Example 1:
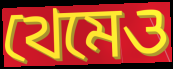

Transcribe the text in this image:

থেমেও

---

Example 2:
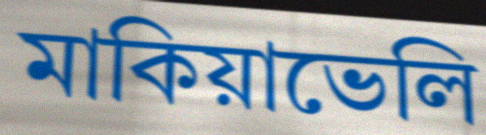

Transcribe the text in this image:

মাকিয়াভেলি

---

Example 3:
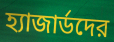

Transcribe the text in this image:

হ্যাজার্ডদের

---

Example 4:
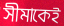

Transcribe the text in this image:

সীমাকেই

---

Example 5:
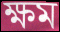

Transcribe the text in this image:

ক্ষম